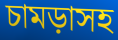
চামড়াসহ